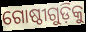
ଗୋଷ୍ଠୀଗୁଡ଼ିକୁ